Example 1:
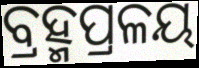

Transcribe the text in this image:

ବ୍ରହ୍ମପ୍ରଳୟ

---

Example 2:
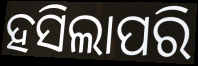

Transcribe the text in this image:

ହସିଲାପରି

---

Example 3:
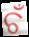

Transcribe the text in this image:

ଚଁ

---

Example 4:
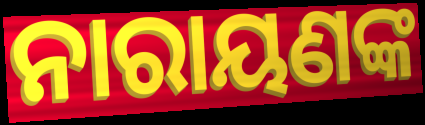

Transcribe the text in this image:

ନାରାୟଣଙ୍କ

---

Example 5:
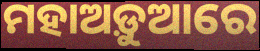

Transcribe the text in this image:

ମହାଅଡ଼ୁଆରେ